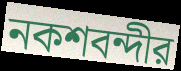
নকশবন্দীর